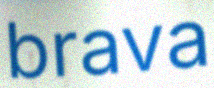
brava